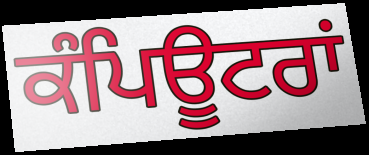
ਕੰਪਿਊਟਰਾਂ